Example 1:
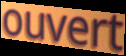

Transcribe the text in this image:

ouvert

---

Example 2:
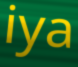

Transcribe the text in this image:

iya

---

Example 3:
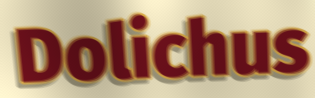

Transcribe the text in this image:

Dolichus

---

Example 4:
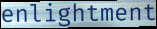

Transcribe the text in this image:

enlightment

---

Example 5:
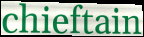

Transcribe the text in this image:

chieftain